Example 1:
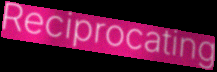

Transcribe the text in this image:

Reciprocating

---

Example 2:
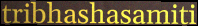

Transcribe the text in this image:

tribhashasamiti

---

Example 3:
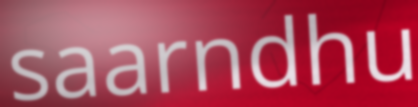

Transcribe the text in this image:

saarndhu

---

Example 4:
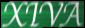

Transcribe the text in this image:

XIVA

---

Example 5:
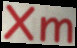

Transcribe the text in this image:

Xm